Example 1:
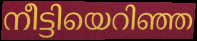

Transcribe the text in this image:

നീട്ടിയെറിഞ്ഞ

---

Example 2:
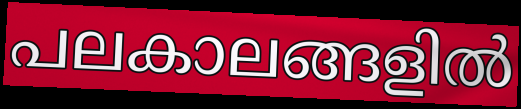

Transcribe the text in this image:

പലകാലങ്ങളിൽ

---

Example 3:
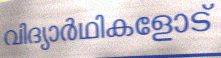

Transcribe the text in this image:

വിദ്യാർഥികളോട്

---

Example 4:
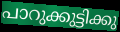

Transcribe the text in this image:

പാറുക്കുട്ടിക്കു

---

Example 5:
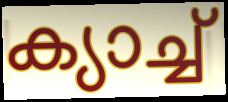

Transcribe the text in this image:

ക്യാച്ച്